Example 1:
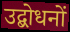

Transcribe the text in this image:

उद्बोधनों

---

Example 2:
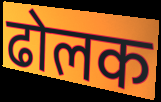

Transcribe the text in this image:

ढोलक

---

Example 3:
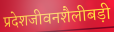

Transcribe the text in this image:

प्रदेशजीवनशैलीबड़ी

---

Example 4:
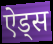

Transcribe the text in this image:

ऐड्स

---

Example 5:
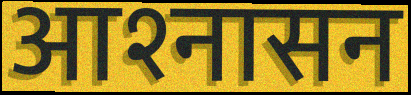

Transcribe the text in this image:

आश्नासन